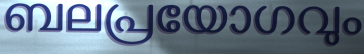
ബലപ്രയോഗവും